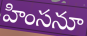
హింసనూ